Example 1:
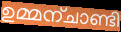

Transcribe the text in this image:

ഉമ്മന്ചാണ്ടി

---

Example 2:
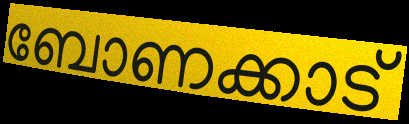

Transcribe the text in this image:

ബോണക്കാട്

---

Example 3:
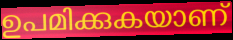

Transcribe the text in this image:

ഉപമിക്കുകയാണ്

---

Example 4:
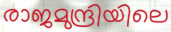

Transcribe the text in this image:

രാജമുന്ദ്രിയിലെ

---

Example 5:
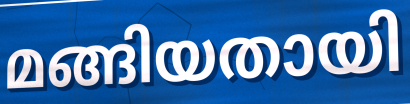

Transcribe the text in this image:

മങ്ങിയതായി